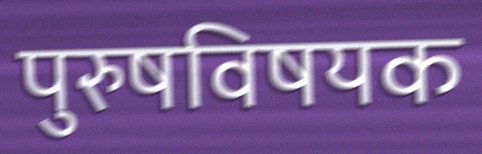
पुरुषविषयक